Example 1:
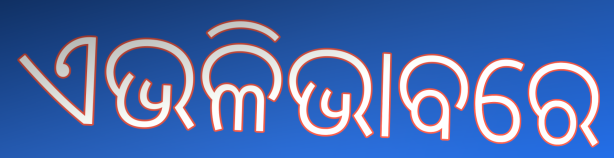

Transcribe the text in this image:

ଏଭଳିଭାବରେ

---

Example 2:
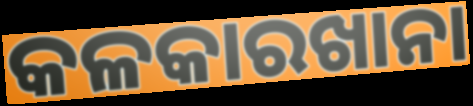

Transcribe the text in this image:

କଳକାରଖାନା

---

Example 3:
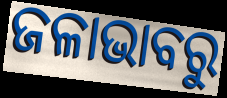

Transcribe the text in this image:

ଜଳାଭାବରୁ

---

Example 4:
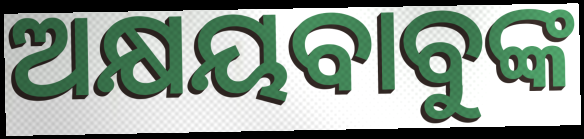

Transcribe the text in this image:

ଅକ୍ଷୟବାବୁଙ୍କ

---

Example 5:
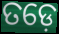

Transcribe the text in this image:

ତଡ଼େ